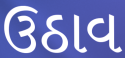
ઉઠાવ